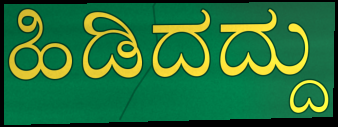
ಹಿಡಿದದ್ದು